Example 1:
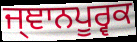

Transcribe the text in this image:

ਜ੍ਞਾਨਪੂਰ੍ਵਕ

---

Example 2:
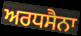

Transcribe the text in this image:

ਅਰਧਸੈਨਾ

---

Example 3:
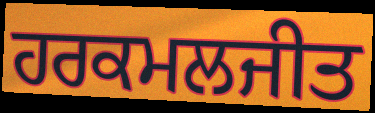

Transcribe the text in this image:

ਹਰਕਮਲਜੀਤ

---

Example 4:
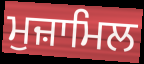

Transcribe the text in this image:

ਮੁਜ਼ਾਮਿਲ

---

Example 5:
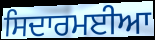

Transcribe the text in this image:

ਸਿਦਾਰਮਈਆ